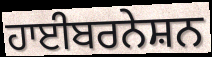
ਹਾਈਬਰਨੇਸ਼ਨ